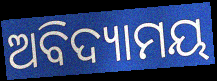
ଅବିଦ୍ୟାମୟ